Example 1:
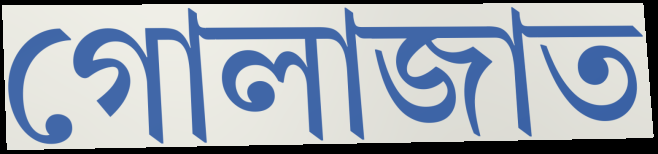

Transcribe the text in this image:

গোলাজাত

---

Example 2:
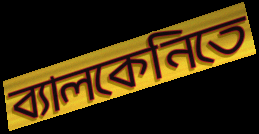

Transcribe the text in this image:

ব্যালকেনিতে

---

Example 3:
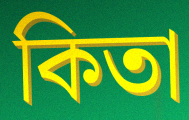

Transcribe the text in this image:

কিতা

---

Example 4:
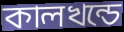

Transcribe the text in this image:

কালখন্ডে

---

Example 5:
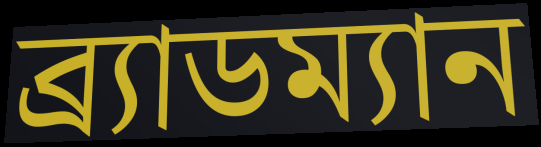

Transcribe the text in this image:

ব্র্যাডম্যান